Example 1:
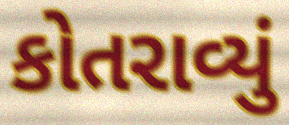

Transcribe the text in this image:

કોતરાવ્યું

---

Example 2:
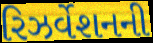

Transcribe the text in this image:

રિઝર્વેશનની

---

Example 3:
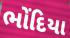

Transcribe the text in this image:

ભોંદિયા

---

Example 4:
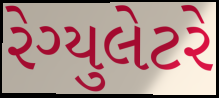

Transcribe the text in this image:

રેગ્યુલેટરે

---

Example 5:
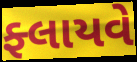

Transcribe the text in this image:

ફ્લાયવે